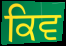
ਕਿਵ